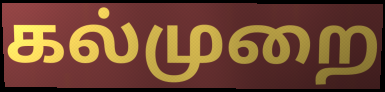
கல்முறை